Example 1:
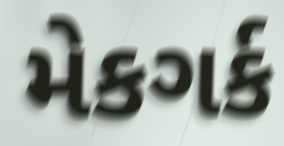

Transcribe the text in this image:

મેકગર્ક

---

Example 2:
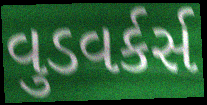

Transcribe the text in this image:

વુડવર્કર્સ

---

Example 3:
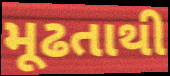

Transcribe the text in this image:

મૂઢતાથી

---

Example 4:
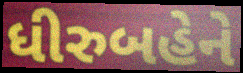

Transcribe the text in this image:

ધીરુબહેને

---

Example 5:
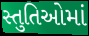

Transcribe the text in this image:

સ્તુતિઓમાં